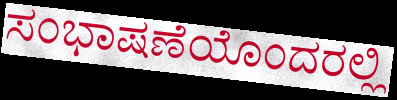
ಸಂಭಾಷಣೆಯೊಂದರಲ್ಲಿ